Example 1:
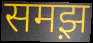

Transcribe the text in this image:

समझ़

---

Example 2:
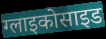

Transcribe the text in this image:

ग्लाइकोसाइड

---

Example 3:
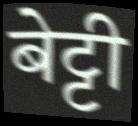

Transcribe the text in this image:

बेट्टी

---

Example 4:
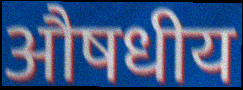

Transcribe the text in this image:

औषधीय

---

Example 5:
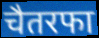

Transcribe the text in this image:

चैतरफा